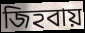
জিহবায়